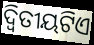
ଦ୍ୱିତୀୟଟିଏ